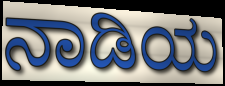
ನಾಡಿಯ